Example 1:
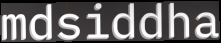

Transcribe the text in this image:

mdsiddha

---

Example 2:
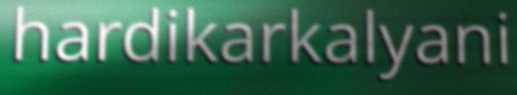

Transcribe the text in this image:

hardikarkalyani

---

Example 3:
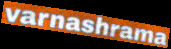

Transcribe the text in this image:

varnashrama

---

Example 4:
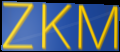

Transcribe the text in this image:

ZKM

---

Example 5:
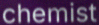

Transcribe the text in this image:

chemist